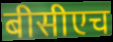
बीसीएच